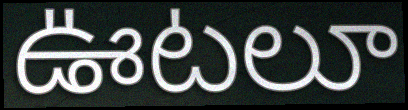
ఊటలూ